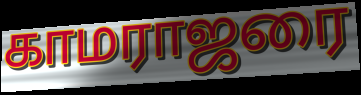
காமராஜரை